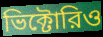
ভিক্টোরিও